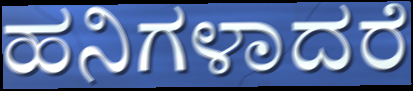
ಹನಿಗಳಾದರೆ